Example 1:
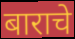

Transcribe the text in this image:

बाराचे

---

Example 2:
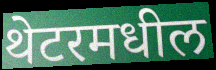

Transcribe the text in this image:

थेटरमधील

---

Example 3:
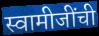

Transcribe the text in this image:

स्वामीजींची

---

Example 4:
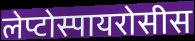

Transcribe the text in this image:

लेप्टोस्पायरोसीस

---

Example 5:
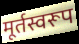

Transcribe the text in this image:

मूर्तस्वरूप